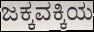
ಜಕ್ಕವಕ್ಕಿಯ